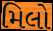
મિલો